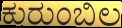
ಕುರುಂಬಿಲ